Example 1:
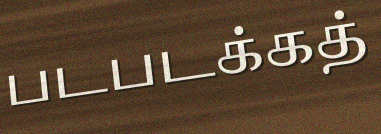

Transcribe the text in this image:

படபடக்கத்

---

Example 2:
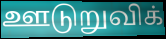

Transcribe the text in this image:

ஊடுறுவிக்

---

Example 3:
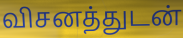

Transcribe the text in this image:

விசனத்துடன்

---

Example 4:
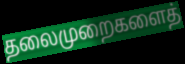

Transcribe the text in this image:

தலைமுறைகளைத்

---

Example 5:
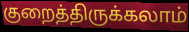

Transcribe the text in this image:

குறைத்திருக்கலாம்